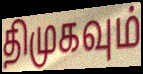
திமுகவும்